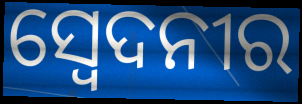
ସ୍ୱେଦନୀର